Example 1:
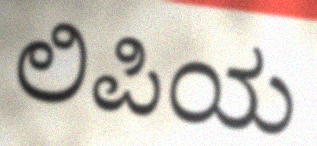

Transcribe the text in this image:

ಲಿಪಿಯ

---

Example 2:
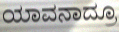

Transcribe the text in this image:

ಯಾವನಾದ್ರೂ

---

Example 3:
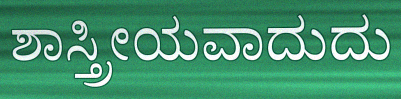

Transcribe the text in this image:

ಶಾಸ್ತ್ರೀಯವಾದುದು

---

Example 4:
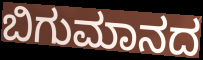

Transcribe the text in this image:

ಬಿಗುಮಾನದ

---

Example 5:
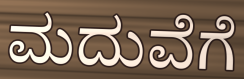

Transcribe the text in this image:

ಮದುವೆಗೆ